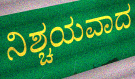
ನಿಶ್ಚಯವಾದ